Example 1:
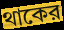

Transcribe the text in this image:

থাকের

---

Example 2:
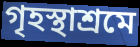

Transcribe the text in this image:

গৃহস্থাশ্রমে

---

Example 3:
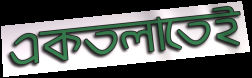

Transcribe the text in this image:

একতলাতেই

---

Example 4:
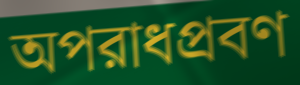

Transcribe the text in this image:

অপরাধপ্রবণ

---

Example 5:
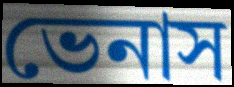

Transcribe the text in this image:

ভেনাস